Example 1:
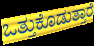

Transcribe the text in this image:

ಒತ್ತುಕೊಡುತ್ತಾರೆ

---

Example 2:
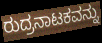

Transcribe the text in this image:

ರುದ್ರನಾಟಕವನ್ನು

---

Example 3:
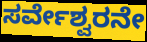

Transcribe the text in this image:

ಸರ್ವೇಶ್ವರನೇ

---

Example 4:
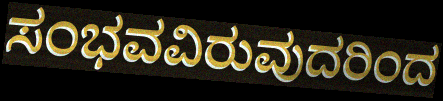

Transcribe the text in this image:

ಸಂಭವವಿರುವುದರಿಂದ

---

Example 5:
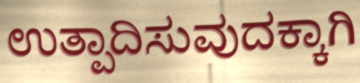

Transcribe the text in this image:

ಉತ್ಪಾದಿಸುವುದಕ್ಕಾಗಿ